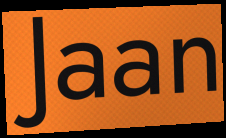
Jaan